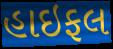
હાઇફલ